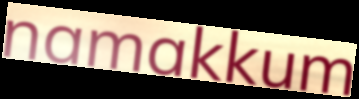
namakkum